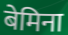
बेमिना